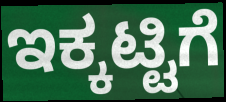
ಇಕ್ಕಟ್ಟಿಗೆ